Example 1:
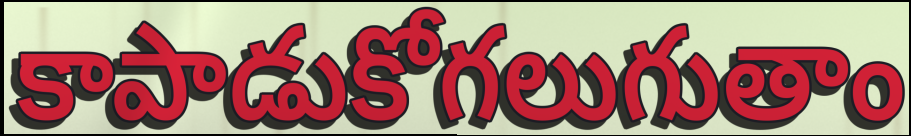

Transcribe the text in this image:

కాపాడుకోగలుగుతాం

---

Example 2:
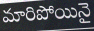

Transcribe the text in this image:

మారిపోయినై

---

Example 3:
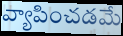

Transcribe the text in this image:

వ్యాపించడమే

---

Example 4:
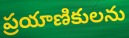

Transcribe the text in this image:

ప్రయాణికులను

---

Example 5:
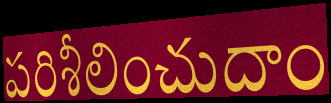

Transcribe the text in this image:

పరిశీలించుదాం